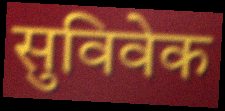
सुविवेक